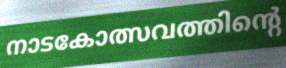
നാടകോത്സവത്തിന്റെ